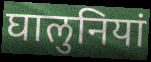
घालुनियां